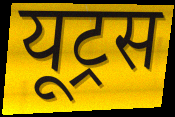
यूट्रस